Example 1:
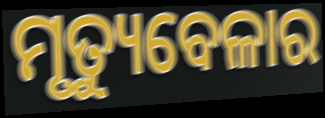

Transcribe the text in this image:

ମୃତ୍ୟୁବେଳାର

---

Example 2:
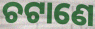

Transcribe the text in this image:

ଚଟାଣେ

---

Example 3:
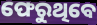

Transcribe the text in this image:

ଫେରୁଥିବେ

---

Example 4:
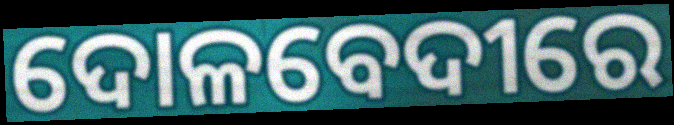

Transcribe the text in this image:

ଦୋଳବେଦୀରେ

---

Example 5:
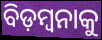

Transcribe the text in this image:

ବିଡ଼ମ୍ୱନାକୁ